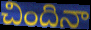
చిందినా